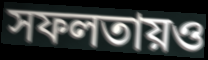
সফলতায়ও